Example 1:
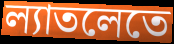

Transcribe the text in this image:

ল্যাতলেতে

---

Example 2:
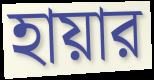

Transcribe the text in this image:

হায়ার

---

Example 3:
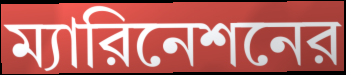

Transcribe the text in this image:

ম্যারিনেশনের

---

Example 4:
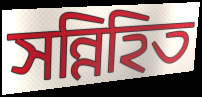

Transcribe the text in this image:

সন্নিহিত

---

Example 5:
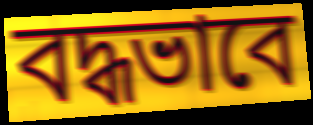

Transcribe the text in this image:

বদ্ধভাবে